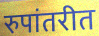
रुपांतरीत